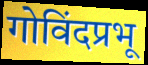
गोविंदप्रभू